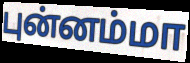
புன்னம்மா